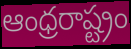
ఆంధ్రరాష్ట్రం